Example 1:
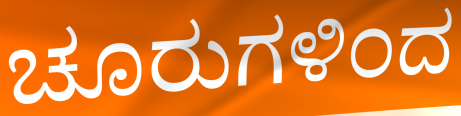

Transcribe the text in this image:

ಚೂರುಗಳಿಂದ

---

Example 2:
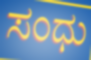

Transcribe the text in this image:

ಸಂಧು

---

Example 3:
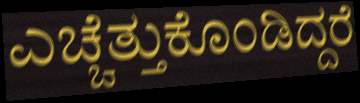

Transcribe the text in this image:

ಎಚ್ಚೆತ್ತುಕೊಂಡಿದ್ದರೆ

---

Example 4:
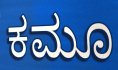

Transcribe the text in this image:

ಕಮೂ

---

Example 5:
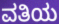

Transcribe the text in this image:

ವತಿಯ